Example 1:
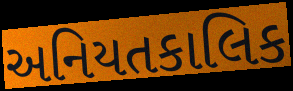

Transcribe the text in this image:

અનિયતકાલિક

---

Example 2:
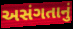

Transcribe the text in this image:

અસંગતાનું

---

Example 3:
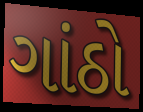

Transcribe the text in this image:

ગાંઠો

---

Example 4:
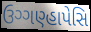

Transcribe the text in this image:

ઉગ્ગણ્હાપેસિ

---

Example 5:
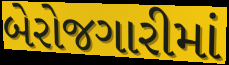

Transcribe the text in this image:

બેરોજગારીમાં